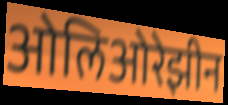
ओलिओरेझीन